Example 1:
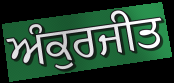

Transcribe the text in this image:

ਅੰਕੁਰਜੀਤ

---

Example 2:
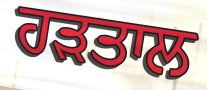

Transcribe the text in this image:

ਹੜਤਾਲ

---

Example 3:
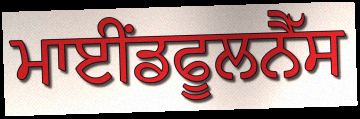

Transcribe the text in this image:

ਮਾਈਂਡਫੂਲਨੈੱਸ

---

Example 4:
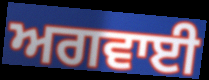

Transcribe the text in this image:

ਅਗਵਾਈ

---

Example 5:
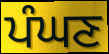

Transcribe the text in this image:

ਪੰਘਣ